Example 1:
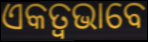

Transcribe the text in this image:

ଏକତ୍ଵଭାବେ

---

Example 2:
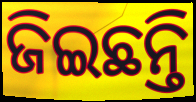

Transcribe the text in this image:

ଜିଇଛନ୍ତି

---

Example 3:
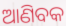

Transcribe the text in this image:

ଆଣିବକ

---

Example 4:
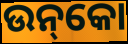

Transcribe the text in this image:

ଉନ୍‌କୋ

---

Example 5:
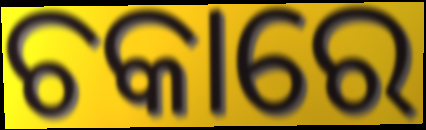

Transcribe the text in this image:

ଚକାରେ